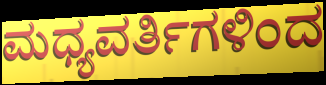
ಮಧ್ಯವರ್ತಿಗಳಿಂದ